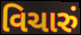
વિચારું